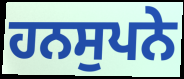
ਹਨਸੁਪਨੇ